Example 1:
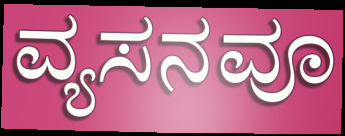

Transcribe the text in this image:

ವ್ಯಸನವೂ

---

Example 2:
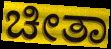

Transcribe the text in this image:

ಚೀತಾ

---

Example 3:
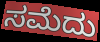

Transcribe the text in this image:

ಸಮೆದು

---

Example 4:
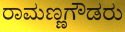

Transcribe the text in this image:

ರಾಮಣ್ಣಗೌಡರು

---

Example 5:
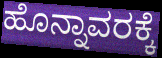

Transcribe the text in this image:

ಹೊನ್ನಾವರಕ್ಕೆ